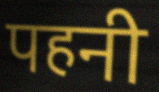
पहनी